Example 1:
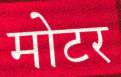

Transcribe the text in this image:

मोटर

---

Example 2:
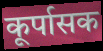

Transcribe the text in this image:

कूर्पासक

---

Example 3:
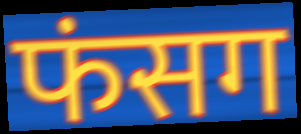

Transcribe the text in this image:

फंसग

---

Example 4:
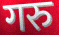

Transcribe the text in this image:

गरु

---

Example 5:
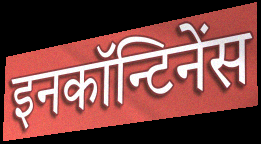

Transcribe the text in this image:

इनकॉन्टिनेंस